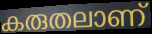
കരുതലാണ്